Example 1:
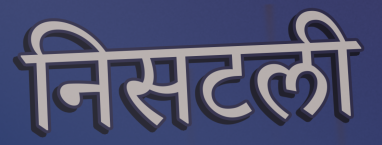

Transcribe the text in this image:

निसटली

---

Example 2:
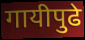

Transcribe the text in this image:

गायीपुढे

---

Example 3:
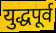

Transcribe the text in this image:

युद्धपूर्व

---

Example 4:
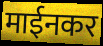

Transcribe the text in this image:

माईनकर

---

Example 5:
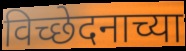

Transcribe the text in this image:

विच्छेदनाच्या